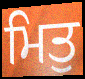
ਮਿਤੁ